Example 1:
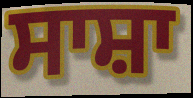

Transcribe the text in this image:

ਸਾਸ਼ਾ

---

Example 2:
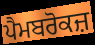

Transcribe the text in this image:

ਪੈਮਬਰੋਕਜ਼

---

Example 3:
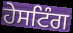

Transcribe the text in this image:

ਹੇਸਟਿੰਗ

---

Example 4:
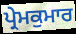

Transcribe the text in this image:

ਪ੍ਰੇਮਕੁਮਾਰ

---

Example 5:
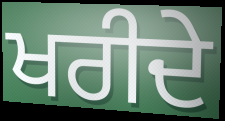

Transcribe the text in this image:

ਖਰੀਦੇ